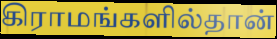
கிராமங்களில்தான்